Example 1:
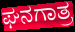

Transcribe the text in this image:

ಘನಗಾತ್ರ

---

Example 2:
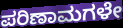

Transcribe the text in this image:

ಪರಿಣಾಮಗಳೇ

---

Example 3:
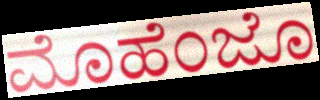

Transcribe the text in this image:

ಮೊಹೆಂಜೊ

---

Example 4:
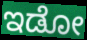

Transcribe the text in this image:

ಇಡೋ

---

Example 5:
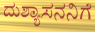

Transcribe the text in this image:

ದುಶ್ಯಾಸನನಿಗೆ